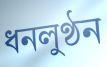
ধনলুণ্ঠন